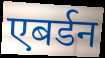
एबर्डन